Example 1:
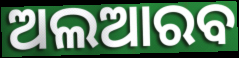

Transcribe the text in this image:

ଅଲଆରବ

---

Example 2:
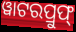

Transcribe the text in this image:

ୱାଟରପ୍ରୁଫ୍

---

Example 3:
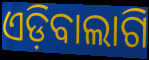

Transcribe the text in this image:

ଏଡ଼ିବାଲାଗି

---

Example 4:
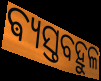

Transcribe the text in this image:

ଵ୍ୟସ୍ତବହୁଳ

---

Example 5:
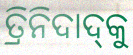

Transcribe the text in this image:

ତ୍ରିନିଦାଦ୍‍କୁ